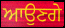
ਆਉਣਗੇ